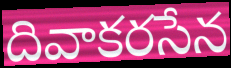
దివాకరసేన